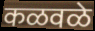
कळवळे